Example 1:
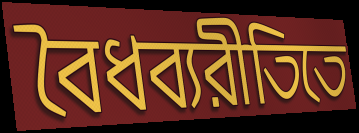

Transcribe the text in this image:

বৈধব্যরীতিতে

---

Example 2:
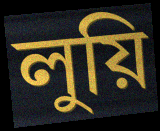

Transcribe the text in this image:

লুয়ি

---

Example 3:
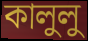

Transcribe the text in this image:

কালুলু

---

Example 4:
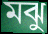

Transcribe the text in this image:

মঝু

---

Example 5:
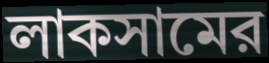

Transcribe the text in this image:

লাকসামের